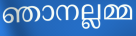
ഞാനല്ലമ്മ